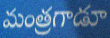
మంత్రగాడూ